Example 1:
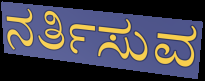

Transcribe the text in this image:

ನರ್ತಿಸುವ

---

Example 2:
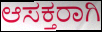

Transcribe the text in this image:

ಆಸಕ್ತರಾಗಿ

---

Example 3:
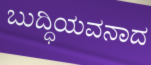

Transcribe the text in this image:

ಬುದ್ಧಿಯವನಾದ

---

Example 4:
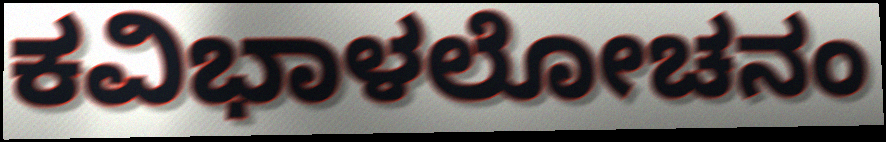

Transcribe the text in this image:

ಕವಿಭಾಳಲೋಚನಂ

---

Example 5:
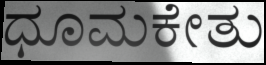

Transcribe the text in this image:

ಧೂಮಕೇತು